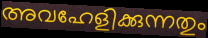
അവഹേളിക്കുന്നതും